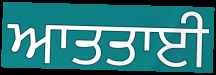
ਆਤਤਾਈ